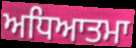
ਅਧਿਆਤਮਾ